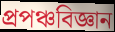
প্ৰপঞ্চবিজ্ঞান